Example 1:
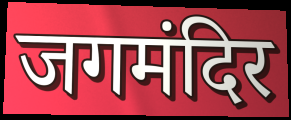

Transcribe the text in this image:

जगमंदिर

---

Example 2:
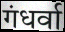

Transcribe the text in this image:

गंधर्वा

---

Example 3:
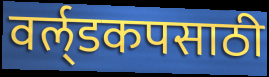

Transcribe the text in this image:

वर्ल्डकपसाठी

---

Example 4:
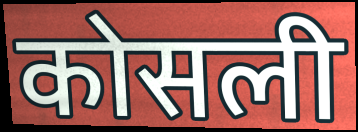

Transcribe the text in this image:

कोसली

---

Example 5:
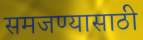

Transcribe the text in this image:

समजण्यासाठी